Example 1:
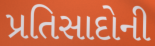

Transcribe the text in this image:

પ્રતિસાદોની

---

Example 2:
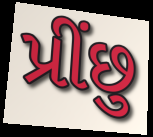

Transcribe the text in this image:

પ્રીંછુ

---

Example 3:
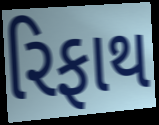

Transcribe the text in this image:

રિફાથ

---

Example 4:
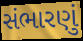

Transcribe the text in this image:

સંભારણું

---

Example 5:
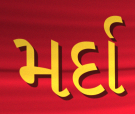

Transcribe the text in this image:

મર્દા